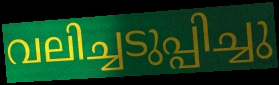
വലിച്ചടുപ്പിച്ചു